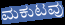
ಮಕುಟವು